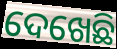
ଦେଖେଛି